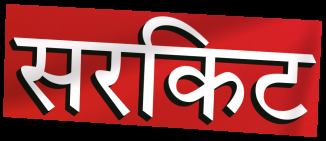
सरकिट